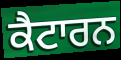
ਕੈਟਾਰਨ